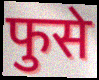
फुसे